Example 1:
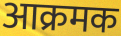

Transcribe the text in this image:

आक्रमक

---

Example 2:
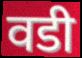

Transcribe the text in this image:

वडी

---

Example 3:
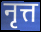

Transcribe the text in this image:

नृत्त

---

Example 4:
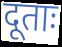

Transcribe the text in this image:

दूताः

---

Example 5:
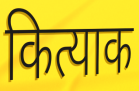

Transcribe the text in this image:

कित्याक